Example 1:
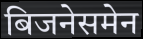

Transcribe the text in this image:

बिजनेसमेन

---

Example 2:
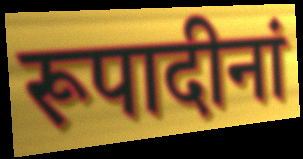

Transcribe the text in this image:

रूपादीनां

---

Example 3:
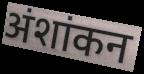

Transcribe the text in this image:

अंशांकन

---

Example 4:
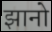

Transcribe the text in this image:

झानो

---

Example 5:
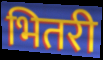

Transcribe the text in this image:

भितरी